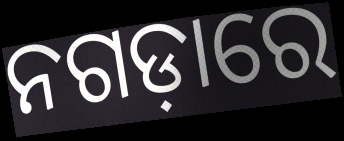
ନଗଡ଼ାରେ